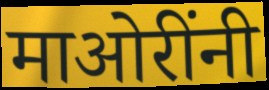
माओरींनी